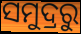
ସମୁଦ୍ରରୁ